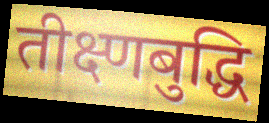
तीक्ष्णबुद्धि